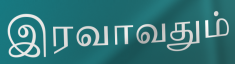
இரவாவதும்